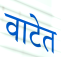
वाटेत